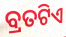
ବ୍ରତଟିଏ